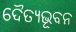
ଦୈତ୍ୟଭୂବନ